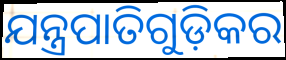
ଯନ୍ତ୍ରପାତିଗୁଡ଼ିକର